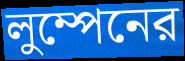
লুম্পেনের